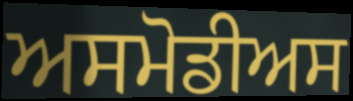
ਅਸਮੋਡੀਅਸ